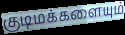
குடிமக்களையும்